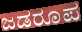
ಜಡರೂಪ